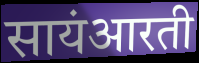
सायंआरती